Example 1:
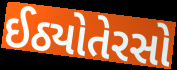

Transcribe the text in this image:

ઈઠ્યોતેરસો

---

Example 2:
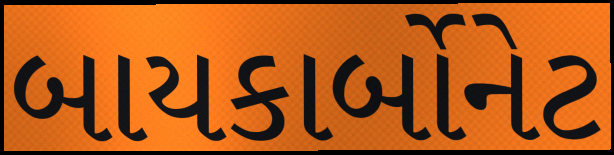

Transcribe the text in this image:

બાયકાર્બોનેટ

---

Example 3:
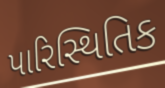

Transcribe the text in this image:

પારિસ્થિતિક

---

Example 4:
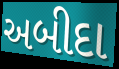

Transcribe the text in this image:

અબીદા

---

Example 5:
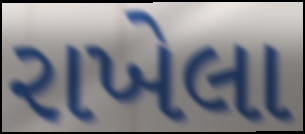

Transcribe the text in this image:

રાખેલા